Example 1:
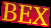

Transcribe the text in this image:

BEX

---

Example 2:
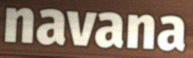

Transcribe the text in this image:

navana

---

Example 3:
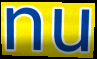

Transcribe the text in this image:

nu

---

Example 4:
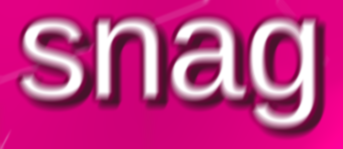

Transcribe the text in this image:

snag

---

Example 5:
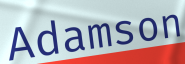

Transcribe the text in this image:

Adamson